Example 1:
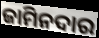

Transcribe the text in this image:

ଜାମିନଦାର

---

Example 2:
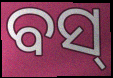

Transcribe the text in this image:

ବସ୍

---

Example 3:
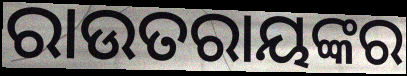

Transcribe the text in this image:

ରାଉତରାୟଙ୍କର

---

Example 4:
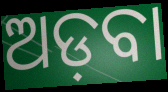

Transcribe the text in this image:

ଅଡ଼ବା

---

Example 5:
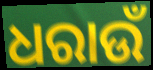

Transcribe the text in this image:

ଧରାଉଁ